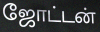
ஜோட்டன்